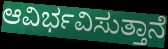
ಆವಿರ್ಭವಿಸುತ್ತಾನೆ